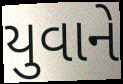
યુવાને